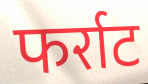
फर्राट